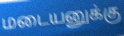
மடையனுக்கு